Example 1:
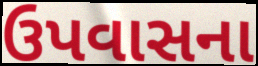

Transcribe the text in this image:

ઉપવાસના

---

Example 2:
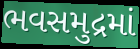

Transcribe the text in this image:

ભવસમુદ્રમાં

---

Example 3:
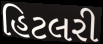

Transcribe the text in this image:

હિટલરી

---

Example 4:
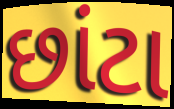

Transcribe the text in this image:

છાંટા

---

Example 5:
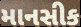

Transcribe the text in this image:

માનસીક